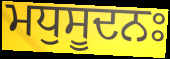
ਮਧੁਸੂਦਨਃ